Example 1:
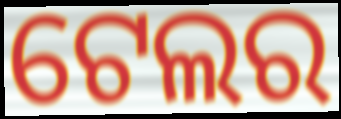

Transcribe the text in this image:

ଟେଲର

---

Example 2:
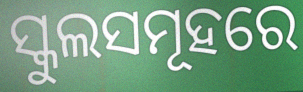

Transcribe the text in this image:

ସ୍କୁଲସମୂହରେ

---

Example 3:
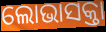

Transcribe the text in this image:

ଲୋଭାସକ୍ତା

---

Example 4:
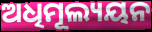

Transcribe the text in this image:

ଅଧିମୂଲ୍ୟୟନ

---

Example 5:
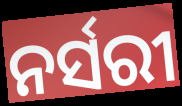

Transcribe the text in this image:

ନର୍ସରୀ